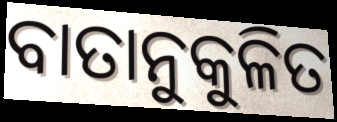
ବାତାନୁକୁଳିତ